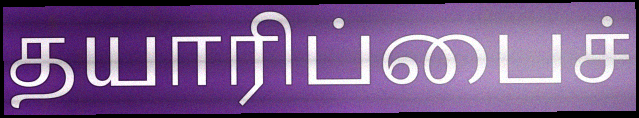
தயாரிப்பைச்